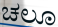
ಚಲೂ